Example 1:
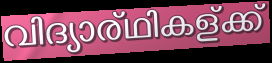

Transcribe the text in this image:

വിദ്യാര്ഥികള്ക്ക്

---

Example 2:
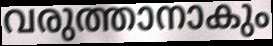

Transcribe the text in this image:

വരുത്താനാകും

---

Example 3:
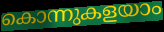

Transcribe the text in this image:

കൊന്നുകളയാം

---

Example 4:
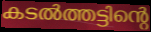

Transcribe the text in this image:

കടൽത്തട്ടിന്റെ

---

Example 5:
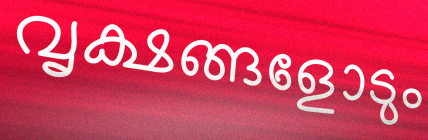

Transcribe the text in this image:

വൃക്ഷങ്ങളോടും